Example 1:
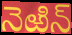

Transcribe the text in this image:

నెఱిన్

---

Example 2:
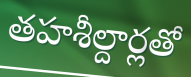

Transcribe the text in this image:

తహశీల్దార్లతో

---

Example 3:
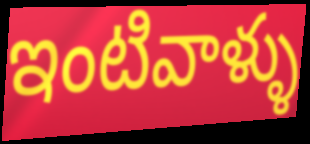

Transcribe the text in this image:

ఇంటివాళ్ళు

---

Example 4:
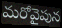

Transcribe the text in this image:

మరోవైపున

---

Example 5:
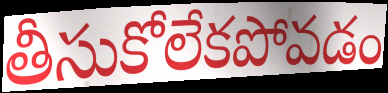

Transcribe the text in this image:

తీసుకోలేకపోవడం